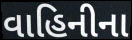
વાહિનીના